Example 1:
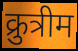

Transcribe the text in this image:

क्रुत्रीम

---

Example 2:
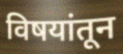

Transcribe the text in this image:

विषयांतून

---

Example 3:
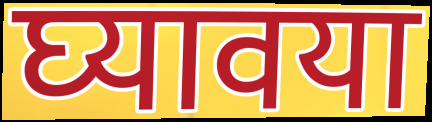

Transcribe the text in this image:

घ्यावया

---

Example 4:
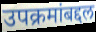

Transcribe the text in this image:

उपक्रमांबद्दल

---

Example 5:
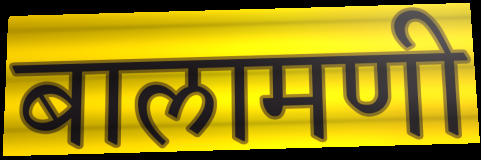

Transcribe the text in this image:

बालामणी